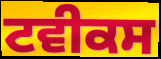
ਟਵੀਕਸ